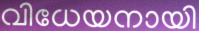
വിധേയനായി